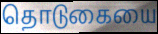
தொடுகையை